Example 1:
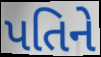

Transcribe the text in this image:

પતિને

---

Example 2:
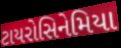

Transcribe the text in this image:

ટાયરોસિનેમિયા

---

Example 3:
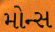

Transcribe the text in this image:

મોન્સ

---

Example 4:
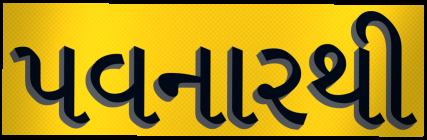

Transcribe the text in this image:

પવનારથી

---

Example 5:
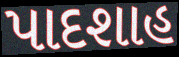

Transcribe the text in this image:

પાદશાહ